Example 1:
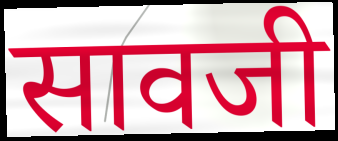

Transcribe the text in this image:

सावजी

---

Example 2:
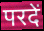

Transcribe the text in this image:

परदें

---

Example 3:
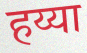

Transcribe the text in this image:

हय्या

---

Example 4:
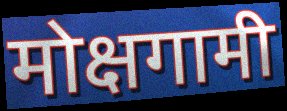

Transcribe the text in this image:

मोक्षगामी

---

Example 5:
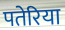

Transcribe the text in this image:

पतेरिया